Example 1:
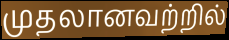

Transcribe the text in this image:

முதலானவற்றில்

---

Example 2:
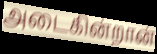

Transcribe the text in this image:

அடைகின்றான்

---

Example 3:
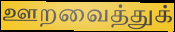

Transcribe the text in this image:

ஊறவைத்துக்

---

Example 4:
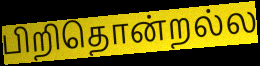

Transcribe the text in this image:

பிறிதொன்றல்ல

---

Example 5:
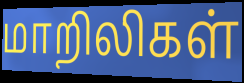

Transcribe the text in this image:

மாறிலிகள்